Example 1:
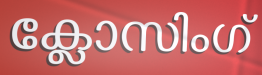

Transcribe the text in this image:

ക്ലോസിംഗ്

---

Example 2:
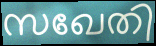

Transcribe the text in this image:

സഖേതി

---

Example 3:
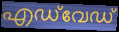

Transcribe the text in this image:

എഡ്‌വേഡ്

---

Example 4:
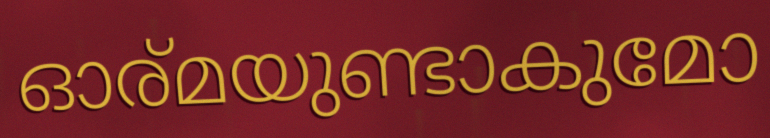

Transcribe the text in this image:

ഓര്മയുണ്ടാകുമോ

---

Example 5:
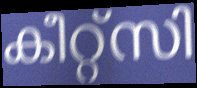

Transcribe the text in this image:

കീറ്റ്സി